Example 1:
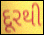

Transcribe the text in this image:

દૂરથી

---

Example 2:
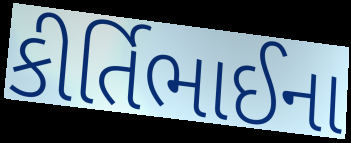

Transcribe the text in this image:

કીર્તિભાઈના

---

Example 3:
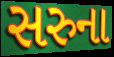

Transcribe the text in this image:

સરુના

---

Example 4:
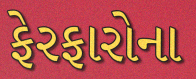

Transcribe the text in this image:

ફેરફારોના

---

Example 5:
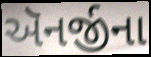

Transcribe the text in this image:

ઍનર્જીના